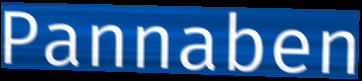
Pannaben